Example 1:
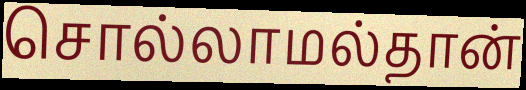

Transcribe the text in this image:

சொல்லாமல்தான்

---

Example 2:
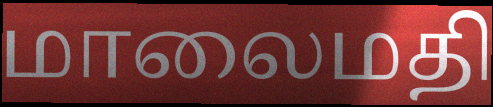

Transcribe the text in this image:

மாலைமதி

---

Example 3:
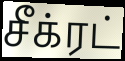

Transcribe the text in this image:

சீக்ரட்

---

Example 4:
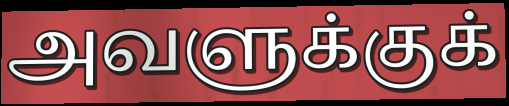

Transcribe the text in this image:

அவளுக்குக்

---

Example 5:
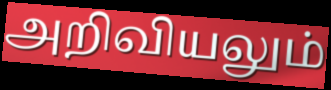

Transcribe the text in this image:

அறிவியலும்